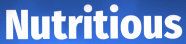
Nutritious